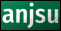
anjsu